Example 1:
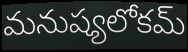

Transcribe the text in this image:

మనుష్యలోకమ్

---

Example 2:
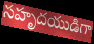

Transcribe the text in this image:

సహృదయుడిగా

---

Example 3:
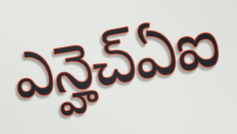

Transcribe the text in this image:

ఎన్హెచ్ఏఐ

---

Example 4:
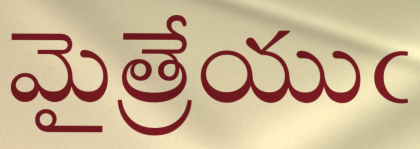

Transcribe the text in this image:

మైత్రేయుఁ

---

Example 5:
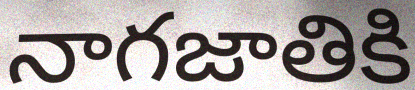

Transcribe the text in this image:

నాగజాతికి